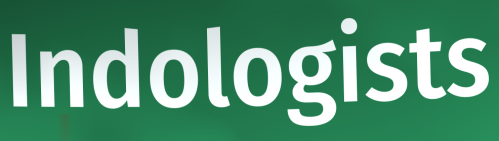
Indologists